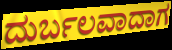
ದುರ್ಬಲವಾದಾಗ